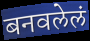
बनवलेलं